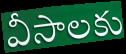
వీసాలకు